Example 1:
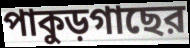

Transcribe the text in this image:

পাকুড়গাছের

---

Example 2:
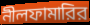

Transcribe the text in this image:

নীলফামারির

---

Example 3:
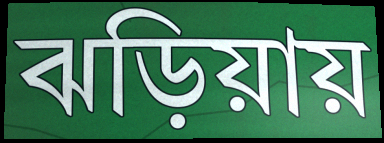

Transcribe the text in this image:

ঝড়িয়ায়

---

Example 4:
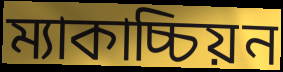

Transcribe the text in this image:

ম্যাকাচ্চিয়ন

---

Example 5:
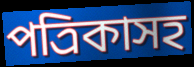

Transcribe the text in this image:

পত্রিকাসহ